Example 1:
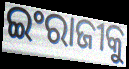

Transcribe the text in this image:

ଇଂରାଜୀକୁ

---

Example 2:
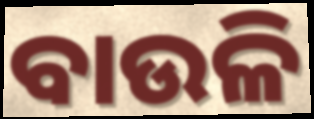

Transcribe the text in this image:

ବାଉଳି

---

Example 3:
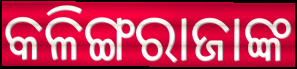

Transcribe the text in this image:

କଳିଙ୍ଗରାଜାଙ୍କ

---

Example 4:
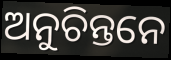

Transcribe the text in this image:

ଅନୁଚିନ୍ତନେ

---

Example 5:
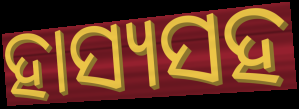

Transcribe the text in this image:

ହାସ୍ୟସହ